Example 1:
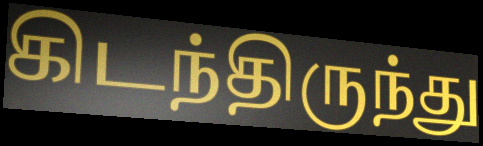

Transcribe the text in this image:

கிடந்திருந்து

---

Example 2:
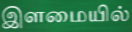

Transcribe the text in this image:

இளமையில்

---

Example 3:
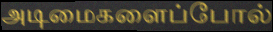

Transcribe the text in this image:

அடிமைகளைப்போல்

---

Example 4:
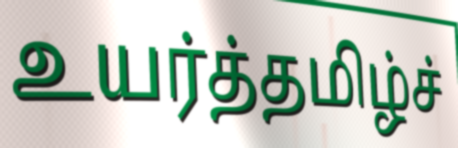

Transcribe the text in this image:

உயர்த்தமிழ்ச்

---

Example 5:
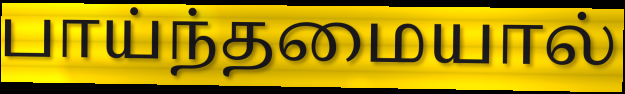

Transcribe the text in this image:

பாய்ந்தமையால்